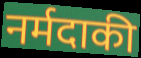
नर्मदाकी